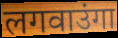
लगवाउंगा